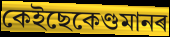
কেইছেকেণ্ডমানৰ